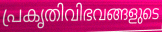
പ്രകൃതിവിഭവങ്ങളുടെ